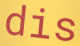
dis